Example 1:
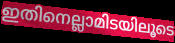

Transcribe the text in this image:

ഇതിനെല്ലാമിടയിലൂടെ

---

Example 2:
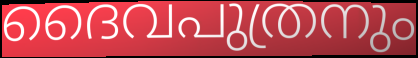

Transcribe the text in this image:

ദൈവപുത്രനും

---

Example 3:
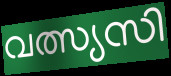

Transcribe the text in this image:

വത്സ്യസി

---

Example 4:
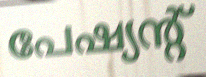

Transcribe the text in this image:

പേഷ്യന്റ്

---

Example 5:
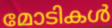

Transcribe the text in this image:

മോടികൾ